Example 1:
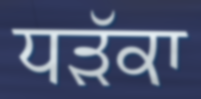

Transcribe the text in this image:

ਧੜੱਕਾ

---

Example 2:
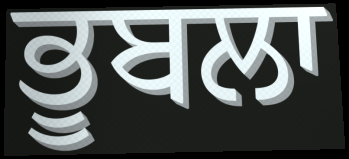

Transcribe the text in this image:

ਭੂਬਲਾ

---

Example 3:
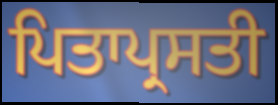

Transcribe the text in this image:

ਪਿਤਾਪ੍ਰਸਤੀ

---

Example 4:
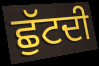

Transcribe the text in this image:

ਛੁੱਟਦੀ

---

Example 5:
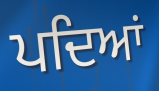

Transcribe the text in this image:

ਪਦਿਆਂ